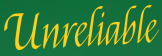
Unreliable